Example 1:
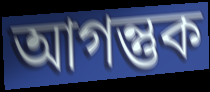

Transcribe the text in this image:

আগন্তুক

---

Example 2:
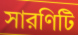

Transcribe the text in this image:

সারণিটি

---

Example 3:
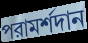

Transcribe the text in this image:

পরামর্শদান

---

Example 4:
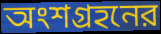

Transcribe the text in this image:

অংশগ্রহনের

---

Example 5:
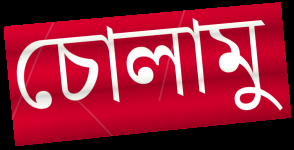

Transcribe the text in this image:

চোলামু